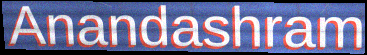
Anandashram